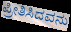
ಪ್ರೀತಿಸಿದವನು